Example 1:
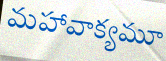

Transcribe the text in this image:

మహావాక్యమూ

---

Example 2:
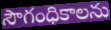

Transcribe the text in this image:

సౌగంధికాలను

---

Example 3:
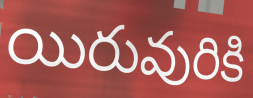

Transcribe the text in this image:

యిరువురికి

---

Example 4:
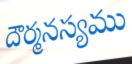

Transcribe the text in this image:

దౌర్మనస్యము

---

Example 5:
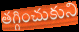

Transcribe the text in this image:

తగ్గించుకుని